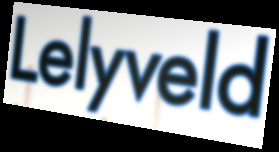
Lelyveld